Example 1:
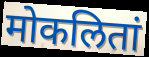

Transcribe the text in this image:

मोकलितां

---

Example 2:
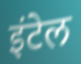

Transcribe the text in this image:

इंटेल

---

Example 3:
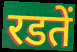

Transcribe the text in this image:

रडतें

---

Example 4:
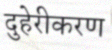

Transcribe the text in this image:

दुहेरीकरण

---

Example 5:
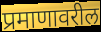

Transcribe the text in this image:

प्रमाणावरील